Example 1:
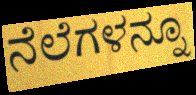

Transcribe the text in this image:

ನೆಲೆಗಳನ್ನೂ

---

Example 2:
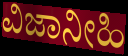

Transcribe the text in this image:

ವಿಜಾನೀಹಿ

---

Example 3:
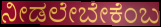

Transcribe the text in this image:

ನೀಡಲೇಬೇಕೆಂಬ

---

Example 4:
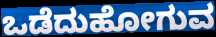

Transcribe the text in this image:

ಒಡೆದುಹೋಗುವ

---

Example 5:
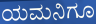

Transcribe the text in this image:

ಯಮನಿಗೂ